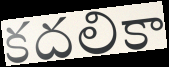
కదలికా